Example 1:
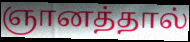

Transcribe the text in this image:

ஞானத்தால்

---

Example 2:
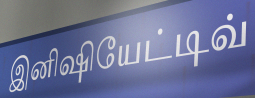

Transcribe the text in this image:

இனிஷியேட்டிவ்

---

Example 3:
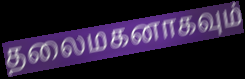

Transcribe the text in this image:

தலைமகனாகவும்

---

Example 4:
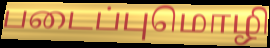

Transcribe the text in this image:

படைப்புமொழி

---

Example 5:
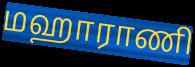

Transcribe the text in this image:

மஹாராணி